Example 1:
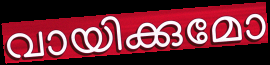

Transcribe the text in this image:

വായിക്കുമോ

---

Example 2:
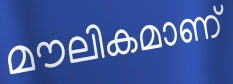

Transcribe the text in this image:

മൗലികമാണ്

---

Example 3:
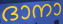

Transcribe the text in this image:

ദാനാ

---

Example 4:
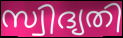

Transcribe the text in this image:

സ്വിദ്യതി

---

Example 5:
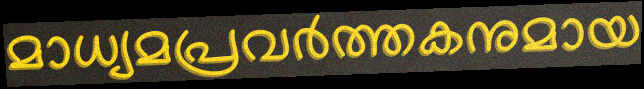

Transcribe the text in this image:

മാധ്യമപ്രവർത്തകനുമായ